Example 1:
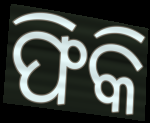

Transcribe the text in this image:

ଫିକି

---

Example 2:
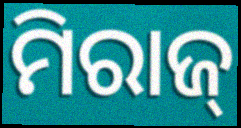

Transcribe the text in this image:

ମିରାଜ୍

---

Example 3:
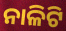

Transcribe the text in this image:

ନାଳିଟି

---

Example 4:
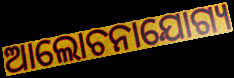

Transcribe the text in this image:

ଆଲୋଚନାଯୋଗ୍ୟ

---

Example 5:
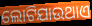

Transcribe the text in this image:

ଲୋଟିଯାଉଥାଏ